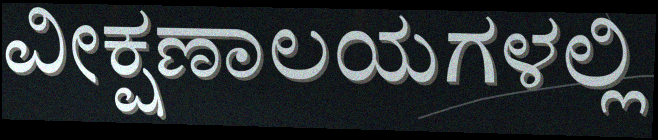
ವೀಕ್ಷಣಾಲಯಗಳಲ್ಲಿ